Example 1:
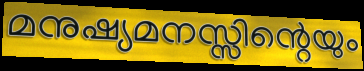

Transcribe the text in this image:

മനുഷ്യമനസ്സിന്റെയും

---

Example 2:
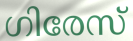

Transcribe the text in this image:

ഗിരേസ്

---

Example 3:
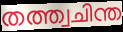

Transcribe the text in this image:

തത്ത്വചിന്ത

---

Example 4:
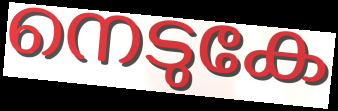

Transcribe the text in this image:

നെടുകേ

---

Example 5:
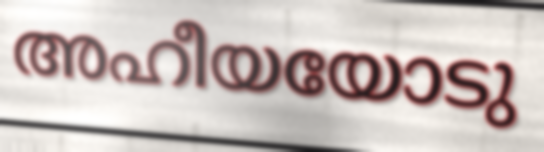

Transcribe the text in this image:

അഹീയയോടു